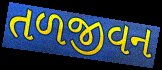
તળજીવન